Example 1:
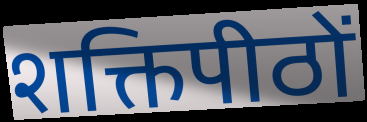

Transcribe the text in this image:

शक्तिपीठों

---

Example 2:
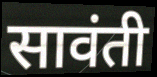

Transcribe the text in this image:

सावंती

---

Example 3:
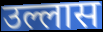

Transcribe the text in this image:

उल्लास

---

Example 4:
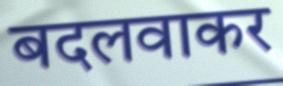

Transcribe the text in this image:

बदलवाकर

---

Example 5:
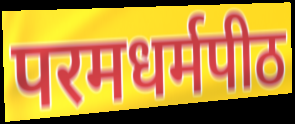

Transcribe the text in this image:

परमधर्मपीठ